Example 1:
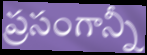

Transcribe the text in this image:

ప్రసంగాన్నీ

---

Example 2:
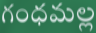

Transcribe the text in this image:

గంధమల్ల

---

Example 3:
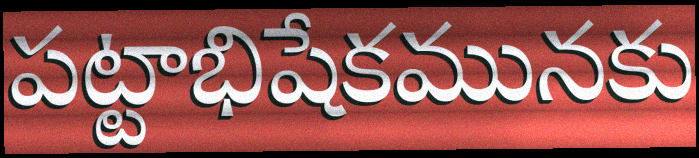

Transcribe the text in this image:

పట్టాభిషేకమునకు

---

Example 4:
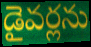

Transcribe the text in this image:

డైవర్లను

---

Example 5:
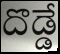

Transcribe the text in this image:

దొడ్డే